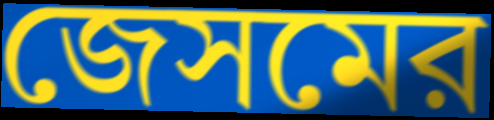
জেসমের